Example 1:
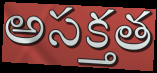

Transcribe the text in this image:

అసక్తత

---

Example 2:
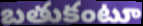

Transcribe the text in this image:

బతుకంటూ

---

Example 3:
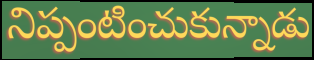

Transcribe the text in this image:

నిప్పంటించుకున్నాడు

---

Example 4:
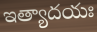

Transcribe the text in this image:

ఇత్యాదయః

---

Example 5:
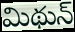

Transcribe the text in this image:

మిథున్